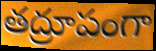
తద్రూపంగా